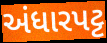
અંધારપટ્ટ